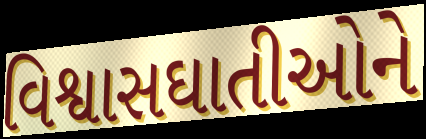
વિશ્વાસઘાતીઓને